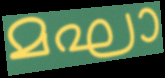
മഘാ